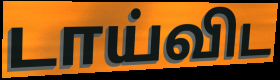
டாய்விட